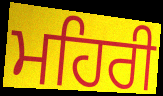
ਮਹਿਰੀ